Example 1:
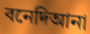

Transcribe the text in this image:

বনেদিআনা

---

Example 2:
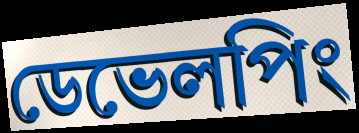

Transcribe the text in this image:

ডেভেলপিং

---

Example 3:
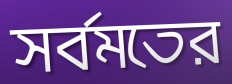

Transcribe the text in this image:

সর্বমতের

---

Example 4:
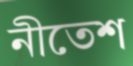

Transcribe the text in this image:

নীতেশ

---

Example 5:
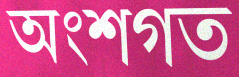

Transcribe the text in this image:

অংশগত